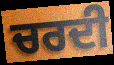
ਚਰਦੀ